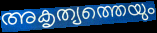
അകൃത്യത്തെയും